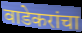
वाडेकरांचा